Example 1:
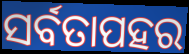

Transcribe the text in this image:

ସର୍ବତାପହର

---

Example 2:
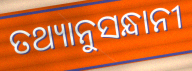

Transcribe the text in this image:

ତଥ୍ୟାନୁସନ୍ଧାନୀ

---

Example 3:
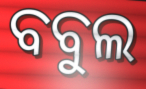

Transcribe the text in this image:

ବବୁଲ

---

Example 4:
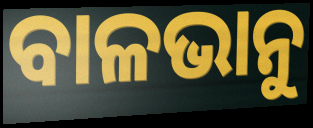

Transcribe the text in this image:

ବାଳଭାନୁ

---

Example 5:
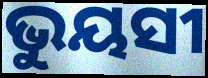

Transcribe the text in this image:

ଭୁୟସୀ